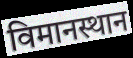
विमानस्थान